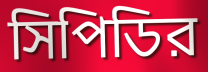
সিপিডির